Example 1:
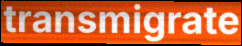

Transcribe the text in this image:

transmigrate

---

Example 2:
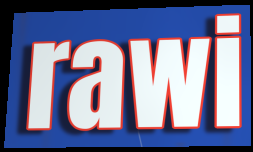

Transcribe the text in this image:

rawi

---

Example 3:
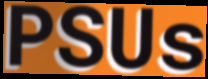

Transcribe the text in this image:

PSUs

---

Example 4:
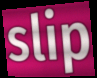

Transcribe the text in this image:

slip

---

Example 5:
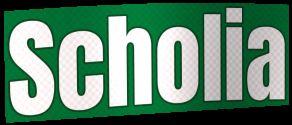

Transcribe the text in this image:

Scholia